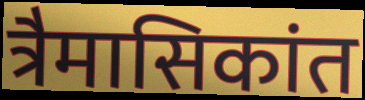
त्रैमासिकांत